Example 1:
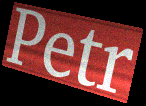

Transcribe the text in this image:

Petr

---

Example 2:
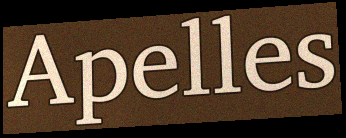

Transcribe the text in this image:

Apelles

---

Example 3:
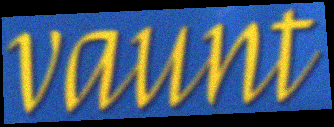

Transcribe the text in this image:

vaunt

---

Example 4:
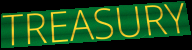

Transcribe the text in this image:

TREASURY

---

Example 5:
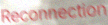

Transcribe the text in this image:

Reconnection